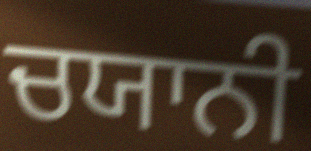
ਚਯਾਨੀ